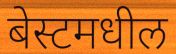
बेस्टमधील